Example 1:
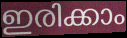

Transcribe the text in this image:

ഇരിക്കാം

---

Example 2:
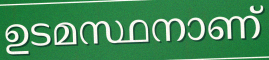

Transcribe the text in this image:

ഉടമസ്ഥനാണ്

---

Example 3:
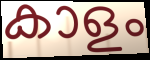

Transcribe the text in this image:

കാളം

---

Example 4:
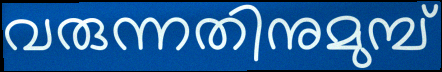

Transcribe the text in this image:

വരുന്നതിനുമുമ്പ്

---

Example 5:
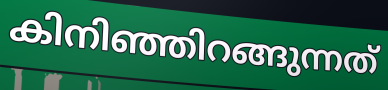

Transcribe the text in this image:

കിനിഞ്ഞിറങ്ങുന്നത്